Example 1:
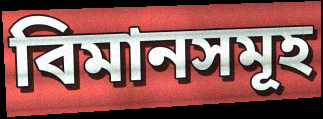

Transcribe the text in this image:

বিমানসমূহ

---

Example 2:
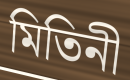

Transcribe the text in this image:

মিতিনী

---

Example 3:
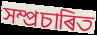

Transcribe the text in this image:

সম্প্ৰচাৰিত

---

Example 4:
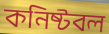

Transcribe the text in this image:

কনিষ্টবল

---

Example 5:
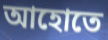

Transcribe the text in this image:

আহোতে